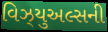
વિઝ્યુઅલ્સની